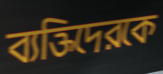
ব্যক্তিদেরকে